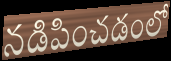
నడిపించడంలో